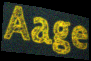
Aage